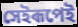
সেইৰূপেই